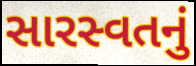
સારસ્વતનું